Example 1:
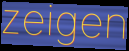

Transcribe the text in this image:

zeigen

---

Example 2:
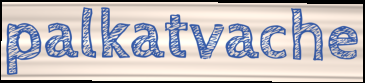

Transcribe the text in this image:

palkatvache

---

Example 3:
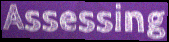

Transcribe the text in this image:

Assessing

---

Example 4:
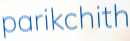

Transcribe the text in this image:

parikchith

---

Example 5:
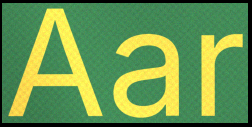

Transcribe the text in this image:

Aar